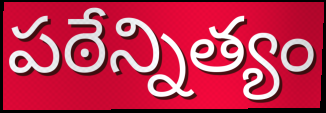
పఠేన్నిత్యం